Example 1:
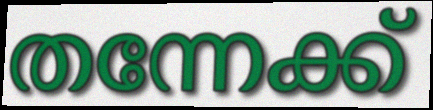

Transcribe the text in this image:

തന്നേക്ക്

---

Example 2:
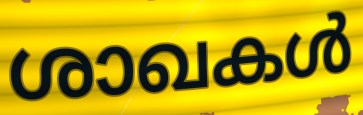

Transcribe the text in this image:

ശാഖകൾ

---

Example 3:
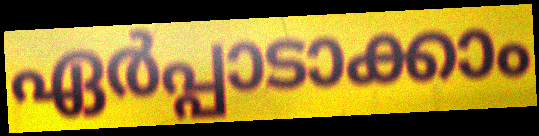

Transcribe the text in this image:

ഏർപ്പാടാക്കാം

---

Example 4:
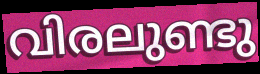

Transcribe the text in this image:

വിരലുണ്ടു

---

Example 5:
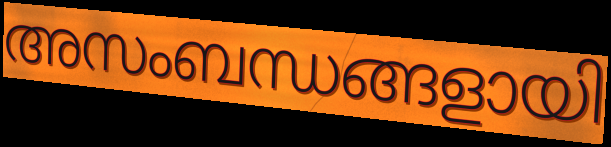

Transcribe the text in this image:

അസംബന്ധങ്ങളായി